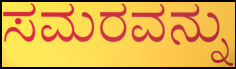
ಸಮರವನ್ನು